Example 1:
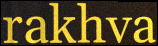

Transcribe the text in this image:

rakhva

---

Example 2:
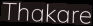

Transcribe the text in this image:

Thakare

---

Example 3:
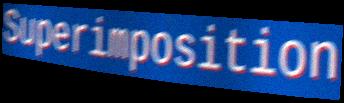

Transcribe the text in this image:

Superimposition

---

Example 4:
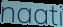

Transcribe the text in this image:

naati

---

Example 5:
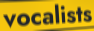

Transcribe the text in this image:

vocalists